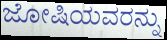
ಜೋಷಿಯವರನ್ನು